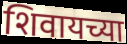
शिवायच्या